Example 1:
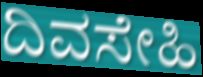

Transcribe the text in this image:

ದಿವಸೇಹಿ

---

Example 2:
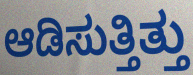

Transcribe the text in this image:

ಆಡಿಸುತ್ತಿತ್ತು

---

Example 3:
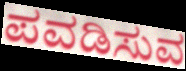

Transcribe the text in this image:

ಪವಡಿಸುವ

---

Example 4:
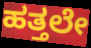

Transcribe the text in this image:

ಹತ್ತಲೇ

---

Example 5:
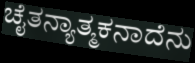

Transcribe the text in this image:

ಚೈತನ್ಯಾತ್ಮಕನಾದೆನು